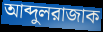
আব্দুলরাজাক